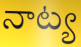
నాట్య